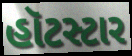
હૉટસ્ટાર